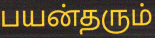
பயன்தரும்